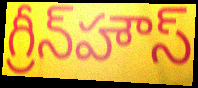
గ్రీన్‌హౌస్